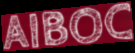
AIBOC